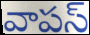
వాపస్